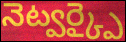
నెట్వర్క్పై